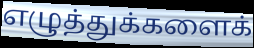
எழுத்துக்களைக்